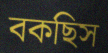
বকছিস